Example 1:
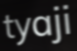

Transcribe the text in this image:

tyaji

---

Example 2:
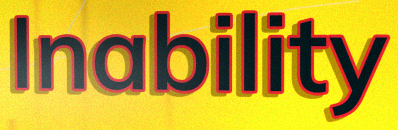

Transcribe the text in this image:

Inability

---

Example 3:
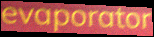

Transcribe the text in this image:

evaporator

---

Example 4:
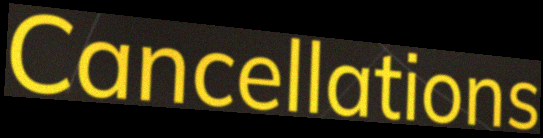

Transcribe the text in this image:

Cancellations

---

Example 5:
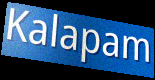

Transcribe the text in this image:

Kalapam